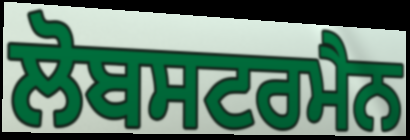
ਲੋਬਸਟਰਮੈਨ